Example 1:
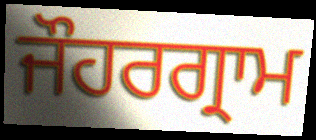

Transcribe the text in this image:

ਜੌਹਰਗ੍ਰਾਮ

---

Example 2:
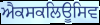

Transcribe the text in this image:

ਐਕਸਕਲਿਊਸਿਵ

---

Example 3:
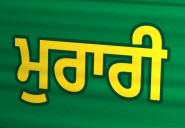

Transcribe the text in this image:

ਮੁਰਾਰੀ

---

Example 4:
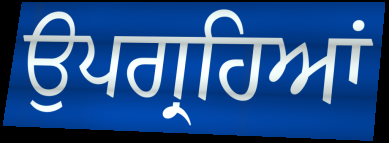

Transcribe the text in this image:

ਉਪਗ੍ਰਹਿਆਂ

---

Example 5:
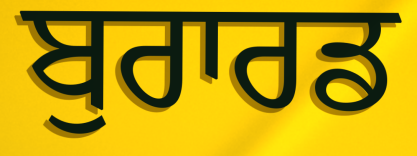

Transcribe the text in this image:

ਬੁਰਾਰਡ